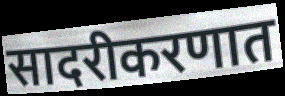
सादरीकरणात